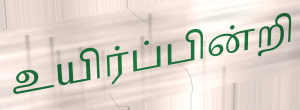
உயிர்ப்பின்றி